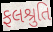
ફલશ્રુતિ